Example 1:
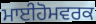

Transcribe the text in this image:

ਮਾਈਹੋਮਵਰਕ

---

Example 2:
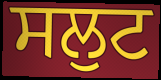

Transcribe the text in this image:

ਸਲੁਟ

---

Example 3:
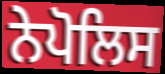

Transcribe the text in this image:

ਨੇਪੋਲਿਸ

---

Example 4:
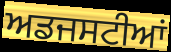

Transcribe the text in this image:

ਅਡਜਸਟੀਆਂ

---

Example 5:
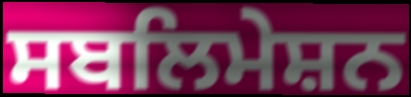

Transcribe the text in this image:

ਸਬਲਿਮੇਸ਼ਨ